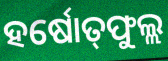
ହର୍ଷୋତ୍‌ଫୁଲ୍ଲ